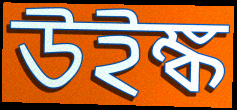
উইঙ্ক